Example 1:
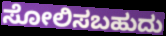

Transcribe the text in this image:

ಸೋಲಿಸಬಹುದು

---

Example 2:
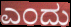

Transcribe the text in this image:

ಎಂದು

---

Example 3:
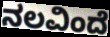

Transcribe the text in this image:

ನಲವಿಂದೆ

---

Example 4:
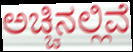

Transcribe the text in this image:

ಅಚ್ಚಿನಲ್ಲಿವೆ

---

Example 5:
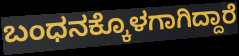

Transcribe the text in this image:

ಬಂಧನಕ್ಕೊಳಗಾಗಿದ್ದಾರೆ